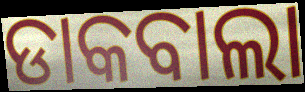
ଡାକବାଲା